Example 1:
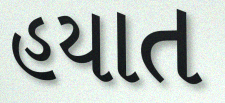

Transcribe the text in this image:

હયાત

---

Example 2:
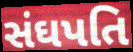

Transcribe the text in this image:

સંઘપતિ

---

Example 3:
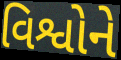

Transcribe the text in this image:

વિશ્વોને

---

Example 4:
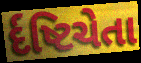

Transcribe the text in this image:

ર્દષ્ટિચેતા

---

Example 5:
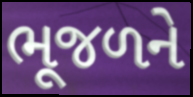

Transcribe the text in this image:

ભૂજળને